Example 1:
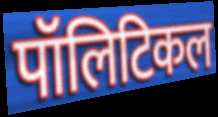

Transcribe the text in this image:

पॉलिटिकल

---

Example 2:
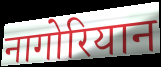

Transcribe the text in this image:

नागोरियान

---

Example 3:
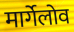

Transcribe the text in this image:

मार्गेलोव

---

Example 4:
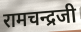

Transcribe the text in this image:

रामचन्द्रजी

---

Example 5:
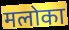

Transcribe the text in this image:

मलोका